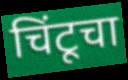
चिंटूचा